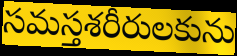
సమస్తశరీరులకును